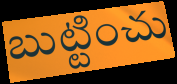
బుట్టించు